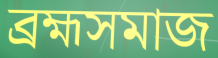
ব্রহ্মসমাজ